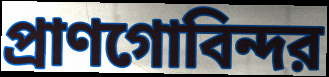
প্রাণগোবিন্দর